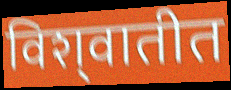
विश्वातीत